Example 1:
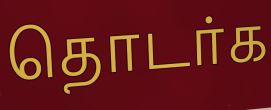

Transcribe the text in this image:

தொடர்க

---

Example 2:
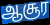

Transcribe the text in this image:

ஆசூர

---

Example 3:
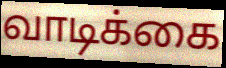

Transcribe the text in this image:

வாடிக்கை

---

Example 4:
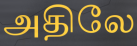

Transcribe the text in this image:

அதிலே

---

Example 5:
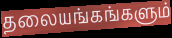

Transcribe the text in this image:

தலையங்கங்களும்